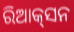
ରିଆକ୍‌ସନ